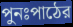
পুনঃপাঠের